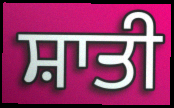
ਸ਼ਾਤੀ